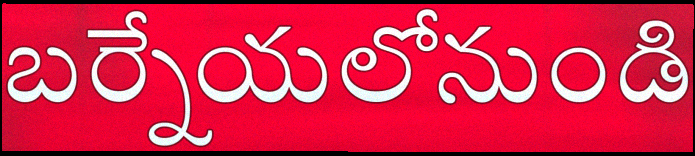
బర్నేయలోనుండి